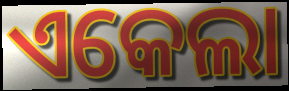
ଏକେଲା